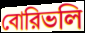
বোরিভলি